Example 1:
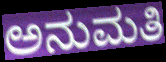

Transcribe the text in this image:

ಅನುಮತಿ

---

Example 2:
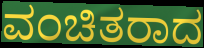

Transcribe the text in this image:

ವಂಚಿತರಾದ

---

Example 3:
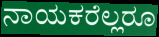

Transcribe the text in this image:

ನಾಯಕರೆಲ್ಲರೂ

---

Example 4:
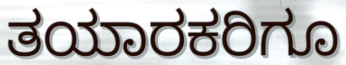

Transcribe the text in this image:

ತಯಾರಕರಿಗೂ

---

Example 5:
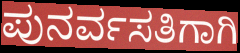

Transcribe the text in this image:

ಪುನರ್ವಸತಿಗಾಗಿ